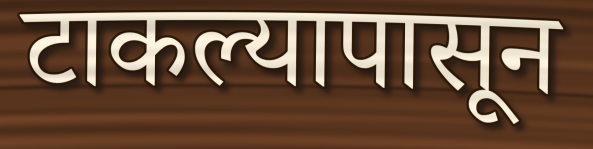
टाकल्यापासून